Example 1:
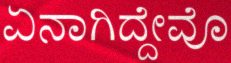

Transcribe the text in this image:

ಏನಾಗಿದ್ದೇವೊ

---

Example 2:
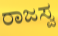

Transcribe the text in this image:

ರಾಜಸ್ವ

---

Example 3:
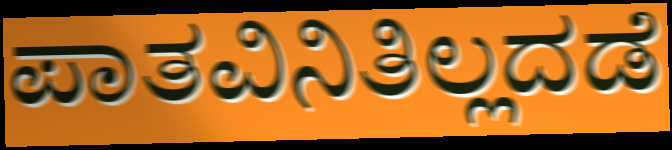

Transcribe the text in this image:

ಪಾತವಿನಿತಿಲ್ಲದಡೆ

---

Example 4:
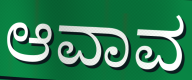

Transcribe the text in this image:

ಆವಾವ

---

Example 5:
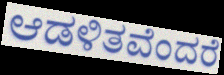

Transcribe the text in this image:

ಆಡಳಿತವೆಂದರೆ